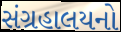
સંગ્રહાલયનો